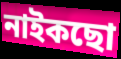
নাইকছো